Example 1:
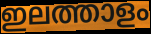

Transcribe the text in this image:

ഇലത്താളം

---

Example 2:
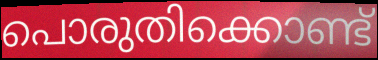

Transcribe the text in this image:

പൊരുതിക്കൊണ്ട്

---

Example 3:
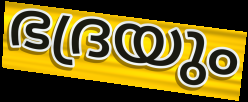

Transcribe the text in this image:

ഭദ്രയും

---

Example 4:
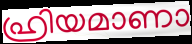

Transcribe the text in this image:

ഹ്രിയമാണാ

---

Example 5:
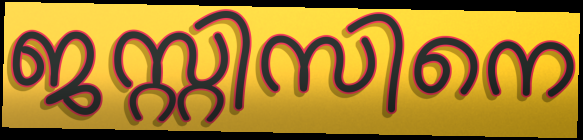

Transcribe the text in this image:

ജസ്റ്റിസിനെ